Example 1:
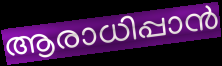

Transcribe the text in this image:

ആരാധിപ്പാൻ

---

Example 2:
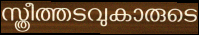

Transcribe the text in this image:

സ്ത്രീത്തടവുകാരുടെ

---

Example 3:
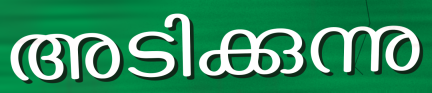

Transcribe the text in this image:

അടിക്കുന്നു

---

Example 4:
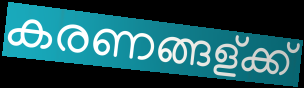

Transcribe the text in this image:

കരണങ്ങള്ക്ക്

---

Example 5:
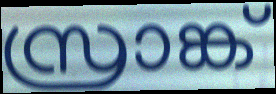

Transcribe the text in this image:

സ്രാങ്ക്